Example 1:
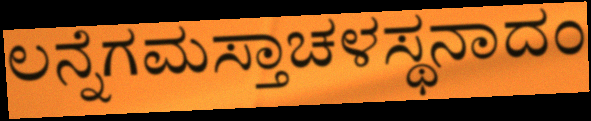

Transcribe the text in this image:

ಲನ್ನೆಗಮಸ್ತಾಚಳಸ್ಥನಾದಂ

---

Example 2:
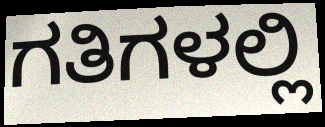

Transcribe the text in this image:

ಗತಿಗಳಲ್ಲಿ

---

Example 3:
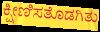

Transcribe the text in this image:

ಕ್ಷೀಣಿಸತೊಡಗಿತು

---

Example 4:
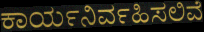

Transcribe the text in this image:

ಕಾರ್ಯನಿರ್ವಹಿಸಲಿವೆ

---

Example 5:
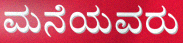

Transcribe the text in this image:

ಮನೆಯವರು